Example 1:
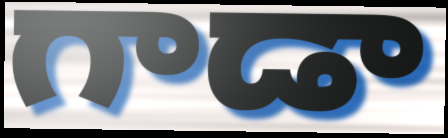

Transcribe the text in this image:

గాడా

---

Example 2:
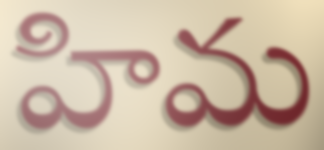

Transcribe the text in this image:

హిమ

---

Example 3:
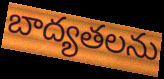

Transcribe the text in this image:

బాద్యతలను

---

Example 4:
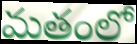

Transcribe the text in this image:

మతంలో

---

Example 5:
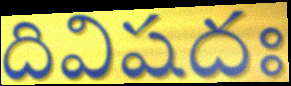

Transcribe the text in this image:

దివిషదః